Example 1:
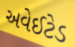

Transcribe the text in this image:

અવેઈટેડ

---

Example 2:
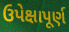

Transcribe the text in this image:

ઉપેક્ષાપૂર્ણ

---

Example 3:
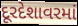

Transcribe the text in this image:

દૂરદેશાવરમાં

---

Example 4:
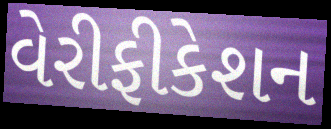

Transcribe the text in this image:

વેરીફીકેશન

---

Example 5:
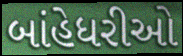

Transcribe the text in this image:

બાંહેધરીઓ